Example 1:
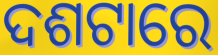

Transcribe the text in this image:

ଦଶଟାରେ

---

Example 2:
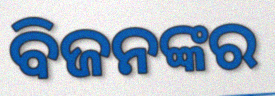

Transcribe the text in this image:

ବିଜନଙ୍କର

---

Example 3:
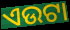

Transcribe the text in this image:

ଏଉଟା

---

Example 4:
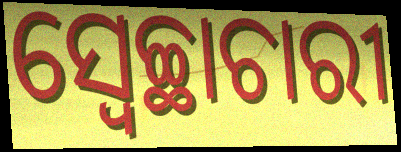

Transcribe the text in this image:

ସ୍ଵେଚ୍ଛାଚାରୀ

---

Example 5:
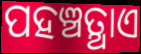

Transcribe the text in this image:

ପହଞ୍ଚତ୍ଥାଏ